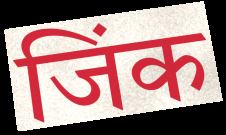
जिंक